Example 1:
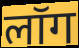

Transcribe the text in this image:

लॉग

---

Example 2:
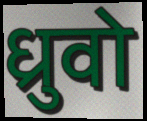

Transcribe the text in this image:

ध्रुवो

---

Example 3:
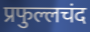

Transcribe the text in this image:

प्रफुल्लचंद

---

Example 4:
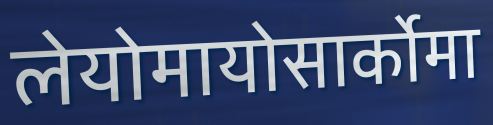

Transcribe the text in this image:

लेयोमायोसार्कोमा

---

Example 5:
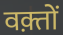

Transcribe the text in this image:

वक़्तों